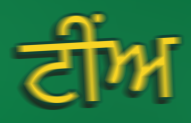
ਟੀਂਅ